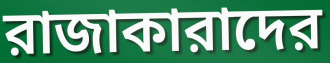
রাজাকারাদের